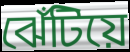
ঝেঁটিয়ে